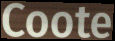
Coote